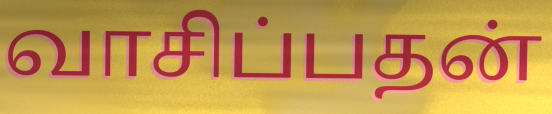
வாசிப்பதன்